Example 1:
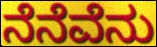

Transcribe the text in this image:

ನೆನೆವೆನು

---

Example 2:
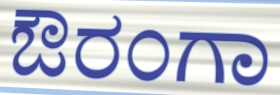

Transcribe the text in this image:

ಔರಂಗಾ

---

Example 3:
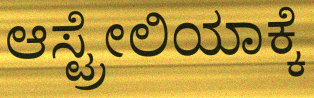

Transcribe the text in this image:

ಆಸ್ಟ್ರೇಲಿಯಾಕ್ಕೆ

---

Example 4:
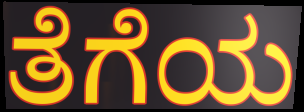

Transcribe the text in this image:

ತೆಗೆಯ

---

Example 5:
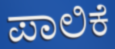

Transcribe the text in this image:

ಪಾಲಿಕೆ